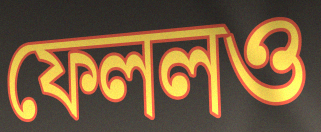
ফেললও